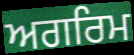
ਅਗਰਿਮ